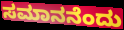
ಸಮಾನನೆಂದು